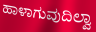
ಹಾಳಾಗುವುದಿಲ್ವಾ